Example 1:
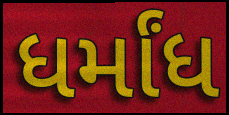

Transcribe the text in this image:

ધર્માંધ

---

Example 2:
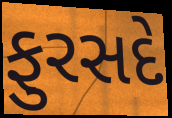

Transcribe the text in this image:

ફુરસદે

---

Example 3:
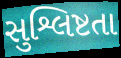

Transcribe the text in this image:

સુશ્લિષ્ટતા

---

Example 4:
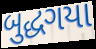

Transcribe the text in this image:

બુદ્ધગયા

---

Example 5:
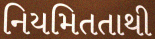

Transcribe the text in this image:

નિયમિતતાથી